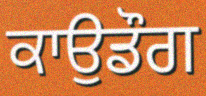
ਕਾਉਡੌਗ